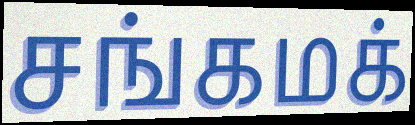
சங்கமக்